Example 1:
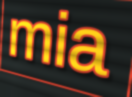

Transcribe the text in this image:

mia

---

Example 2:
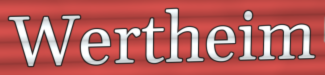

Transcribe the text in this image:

Wertheim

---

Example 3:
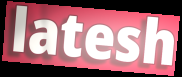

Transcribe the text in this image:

latesh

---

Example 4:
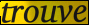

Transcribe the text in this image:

trouve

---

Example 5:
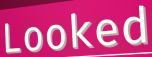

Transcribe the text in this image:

Looked